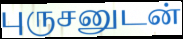
புருசனுடன்